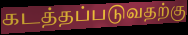
கடத்தப்படுவதற்கு